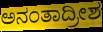
ಅನಂತಾದ್ರೀಶ